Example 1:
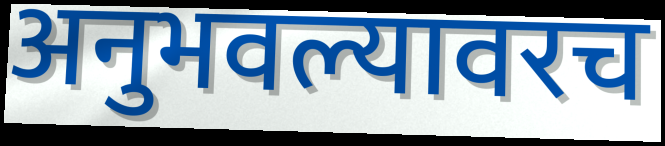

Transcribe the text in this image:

अनुभवल्यावरच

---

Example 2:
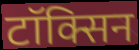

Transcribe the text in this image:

टॉक्सिन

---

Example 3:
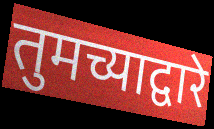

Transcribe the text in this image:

तुमच्याद्वारे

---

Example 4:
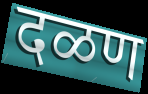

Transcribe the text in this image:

दळण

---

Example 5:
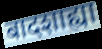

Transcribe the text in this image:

बादशाह्या